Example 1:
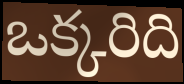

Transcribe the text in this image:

ఒక్కరిది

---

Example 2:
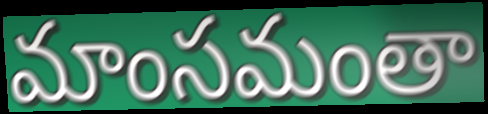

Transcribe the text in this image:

మాంసమంతా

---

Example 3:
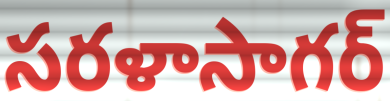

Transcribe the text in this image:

సరళాసాగర్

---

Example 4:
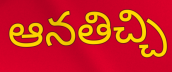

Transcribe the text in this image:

ఆనతిచ్చి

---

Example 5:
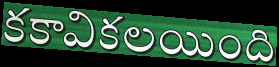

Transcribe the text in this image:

కకావికలయింది